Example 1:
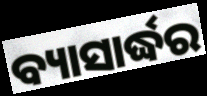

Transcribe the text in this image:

ବ୍ୟାସାର୍ଦ୍ଧର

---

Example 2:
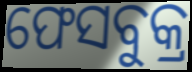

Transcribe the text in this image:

ଫେସବୁକ୍ର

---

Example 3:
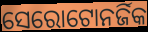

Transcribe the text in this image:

ସେରୋଟୋନର୍ଜିକ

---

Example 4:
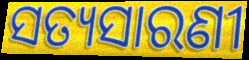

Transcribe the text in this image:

ସତ୍ୟସାରଣୀ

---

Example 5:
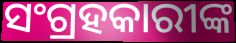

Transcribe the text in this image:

ସଂଗ୍ରହକାରୀଙ୍କ